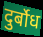
दुर्बोध